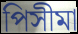
পিসীমা